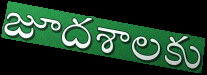
జూదశాలకు